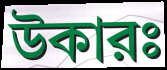
উকারঃ